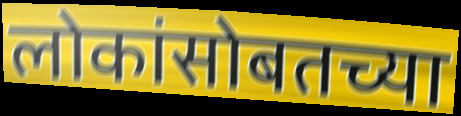
लोकांसोबतच्या